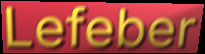
Lefeber